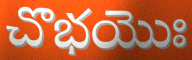
చొభయొః